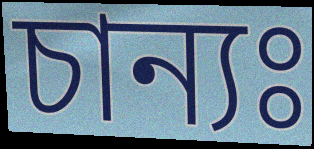
চান্যঃ